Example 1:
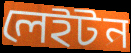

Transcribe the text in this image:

লেইটন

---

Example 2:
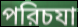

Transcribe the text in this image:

পরিচযা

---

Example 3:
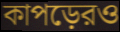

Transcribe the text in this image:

কাপড়েরও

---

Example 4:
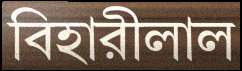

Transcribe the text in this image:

বিহারীলাল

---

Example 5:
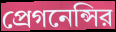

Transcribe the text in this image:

প্রেগনেন্সির